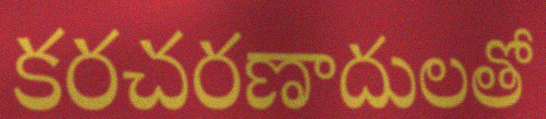
కరచరణాదులతో